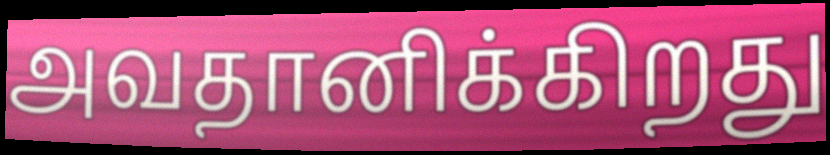
அவதானிக்கிறது